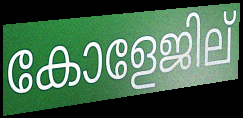
കോളേജില്